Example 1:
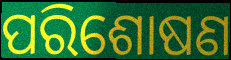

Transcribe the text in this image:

ପରିଶୋଷଣ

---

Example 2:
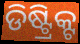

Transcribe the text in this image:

ଡିଷ୍ଟ୍ରିକ୍ଟ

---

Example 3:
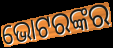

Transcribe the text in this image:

ଭୋଟରଙ୍କର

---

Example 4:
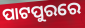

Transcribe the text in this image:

ପାଟପୁରରେ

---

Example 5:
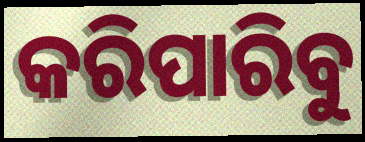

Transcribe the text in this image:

କରିପାରିବୁ